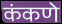
कंकणे